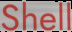
Shell